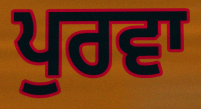
ਪੁਰਵਾ